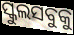
ସ୍କୁଲସବୁକୁ